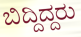
ಬಿದ್ದಿದ್ದರು